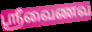
ஸ்ரீவைணவ